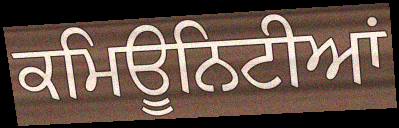
ਕਮਿਊਨਿਟੀਆਂ